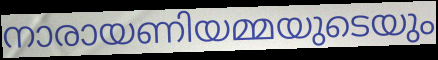
നാരായണിയമ്മയുടെയും